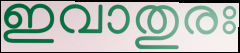
ഇവാതുരഃ